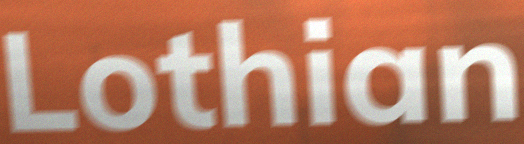
Lothian